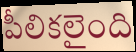
పీలికలైంది